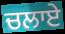
ਚਲਾਏ